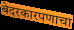
बेदरकारपणाचा